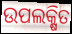
ଉପଲକ୍ଷିତ